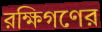
রক্ষিগণের